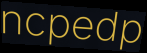
ncpedp